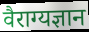
वैराग्यज्ञान